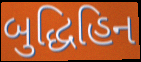
બુદ્ધિહિન